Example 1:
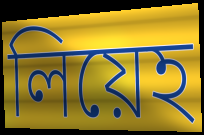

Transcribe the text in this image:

লিয়েহ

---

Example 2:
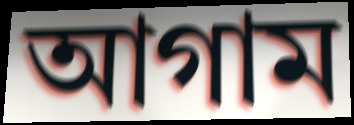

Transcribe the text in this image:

আগাম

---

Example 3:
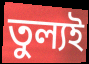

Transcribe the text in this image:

তুল্যই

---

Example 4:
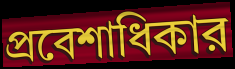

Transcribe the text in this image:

প্রবেশাধিকার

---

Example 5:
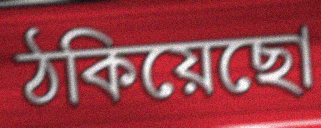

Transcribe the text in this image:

ঠকিয়েছো